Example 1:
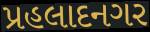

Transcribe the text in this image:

પ્રહલાદનગર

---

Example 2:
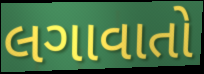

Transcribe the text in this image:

લગાવાતો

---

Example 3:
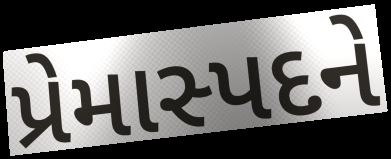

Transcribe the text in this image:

પ્રેમાસ્પદને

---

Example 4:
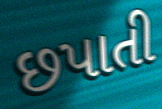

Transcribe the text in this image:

છપાતી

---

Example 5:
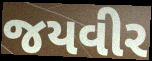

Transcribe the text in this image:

જયવીર